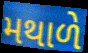
મથાળે